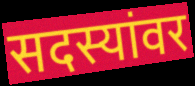
सदस्यांवर